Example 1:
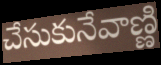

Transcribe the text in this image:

చేసుకునేవాణ్ణి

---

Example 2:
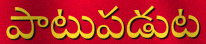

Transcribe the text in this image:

పాటుపడుట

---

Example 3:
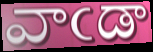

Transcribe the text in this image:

వాఁడా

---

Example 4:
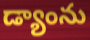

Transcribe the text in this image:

డ్యాంను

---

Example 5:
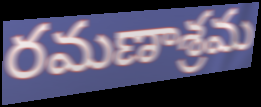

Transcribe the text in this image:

రమణాశ్రమ